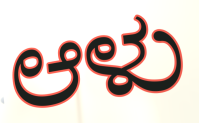
ಆಳು